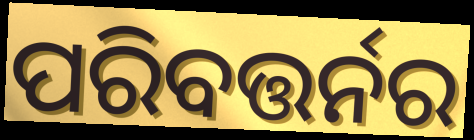
ପରିବତ୍ତର୍ନର